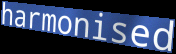
harmonised